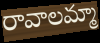
రావాలమ్మా